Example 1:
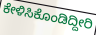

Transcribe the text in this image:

ಕೇಳಿಸಿಕೊಂಡಿದ್ದೀರಿ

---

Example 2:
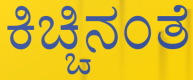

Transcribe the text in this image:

ಕಿಚ್ಚಿನಂತೆ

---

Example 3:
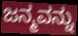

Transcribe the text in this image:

ಜನ್ಮವನ್ನು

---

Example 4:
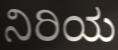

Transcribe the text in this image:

ನಿರಿಯ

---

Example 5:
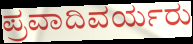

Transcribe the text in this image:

ಪ್ರವಾದಿವರ್ಯರು